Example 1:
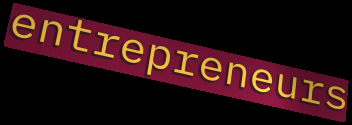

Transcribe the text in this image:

entrepreneurs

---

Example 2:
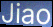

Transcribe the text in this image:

Jiao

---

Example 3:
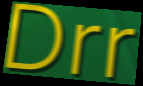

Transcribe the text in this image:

Drr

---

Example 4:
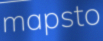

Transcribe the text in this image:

mapsto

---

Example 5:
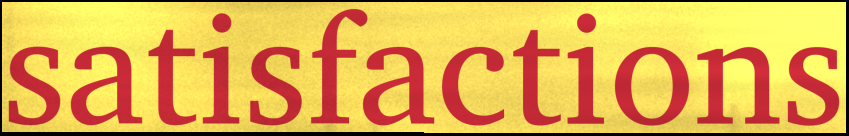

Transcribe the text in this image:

satisfactions